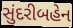
સુંદરીબહેન